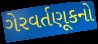
ગેરવર્તણૂકનો